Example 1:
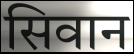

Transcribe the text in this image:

सिवान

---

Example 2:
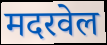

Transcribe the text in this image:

मदरवेल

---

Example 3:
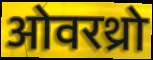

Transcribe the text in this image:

ओवरथ्रो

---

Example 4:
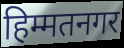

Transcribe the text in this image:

हिम्मतनगर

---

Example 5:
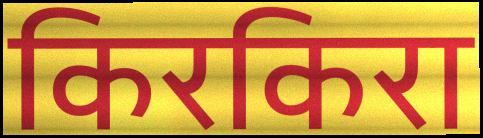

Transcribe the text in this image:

किरकिरा